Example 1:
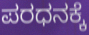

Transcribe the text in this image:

ಪರಧನಕ್ಕೆ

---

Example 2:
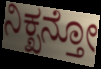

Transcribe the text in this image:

ನಿಕ್ಖನ್ತೋ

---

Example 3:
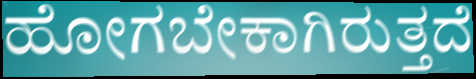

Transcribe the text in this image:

ಹೋಗಬೇಕಾಗಿರುತ್ತದೆ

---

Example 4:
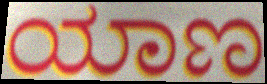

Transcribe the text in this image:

ಯಾಣ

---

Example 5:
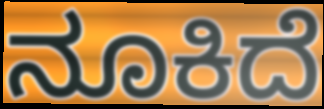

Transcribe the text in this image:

ನೂಕಿದೆ